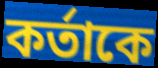
কর্তাকে